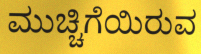
ಮುಚ್ಚಿಗೆಯಿರುವ